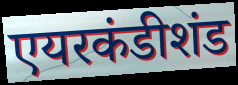
एयरकंडीशंड